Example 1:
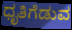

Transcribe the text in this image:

ಧೃತಿಗೆಡುವ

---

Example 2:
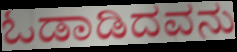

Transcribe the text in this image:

ಓಡಾಡಿದವನು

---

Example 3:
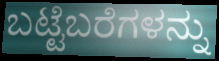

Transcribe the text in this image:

ಬಟ್ಟೆಬರೆಗಳನ್ನು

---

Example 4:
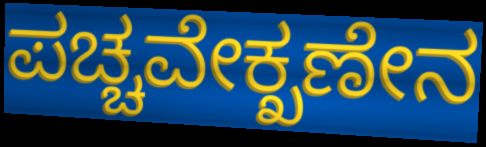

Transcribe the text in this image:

ಪಚ್ಚವೇಕ್ಖಣೇನ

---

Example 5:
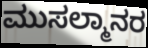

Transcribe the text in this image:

ಮುಸಲ್ಮಾನರ